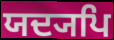
ਯਦ੍ਯਪਿ